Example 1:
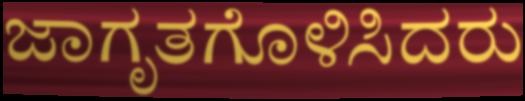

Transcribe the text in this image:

ಜಾಗೃತಗೊಳಿಸಿದರು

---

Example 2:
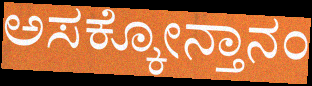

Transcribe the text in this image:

ಅಸಕ್ಕೋನ್ತಾನಂ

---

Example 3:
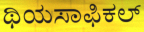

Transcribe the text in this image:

ಥಿಯಸಾಫಿಕಲ್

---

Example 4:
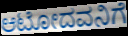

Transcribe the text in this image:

ಆಟೋದವನಿಗೆ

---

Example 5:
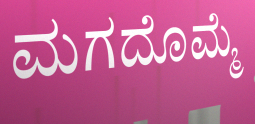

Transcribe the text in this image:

ಮಗದೊಮ್ಮೆ